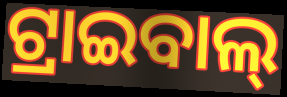
ଟ୍ରାଇବାଲ୍